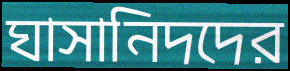
ঘাসানিদদের